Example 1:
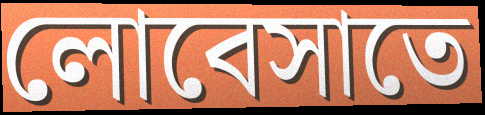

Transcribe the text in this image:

লোবেসাতে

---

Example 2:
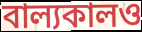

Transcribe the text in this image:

বাল্যকালও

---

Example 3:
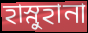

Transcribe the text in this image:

হাস্নুহানা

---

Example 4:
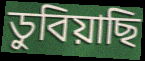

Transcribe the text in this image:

ডুবিয়াছি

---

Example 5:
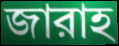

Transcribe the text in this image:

জারাহ